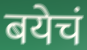
बयेचं